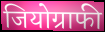
जियोग्राफी